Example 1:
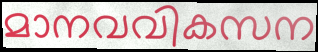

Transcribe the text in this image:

മാനവവികസന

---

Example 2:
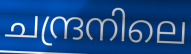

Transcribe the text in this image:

ചന്ദ്രനിലെ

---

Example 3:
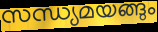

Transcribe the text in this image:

സന്ധ്യമയങ്ങും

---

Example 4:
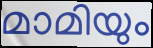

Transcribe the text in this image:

മാമിയും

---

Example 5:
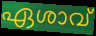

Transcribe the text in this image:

ഏശാവ്